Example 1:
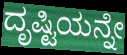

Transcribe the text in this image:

ದೃಷ್ಟಿಯನ್ನೇ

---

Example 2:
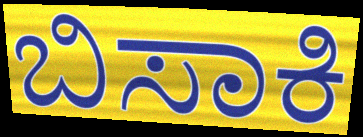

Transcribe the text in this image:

ಬಿಸಾಕಿ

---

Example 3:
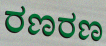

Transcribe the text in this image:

ರಣರಣ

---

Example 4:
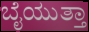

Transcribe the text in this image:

ಬೈಯುತ್ತಾ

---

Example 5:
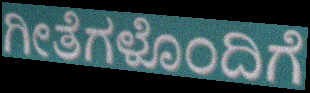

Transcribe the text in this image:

ಗೀತೆಗಳೊಂದಿಗೆ